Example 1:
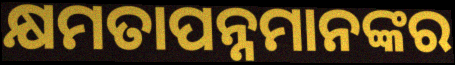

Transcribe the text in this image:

କ୍ଷମତାପନ୍ନମାନଙ୍କର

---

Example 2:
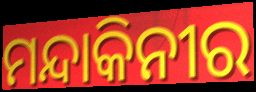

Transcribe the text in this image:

ମନ୍ଦାକିନୀର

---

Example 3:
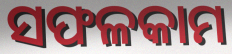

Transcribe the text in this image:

ସଫଳକାମ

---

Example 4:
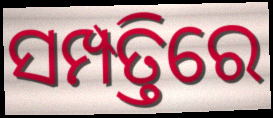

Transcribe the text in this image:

ସମ୍ପତ୍ତିରେ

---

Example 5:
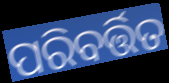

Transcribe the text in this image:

ପରିବର୍ତ୍ତିତ